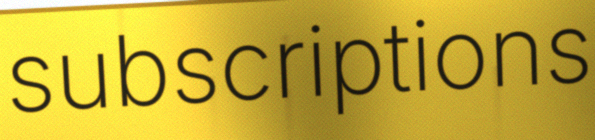
subscriptions